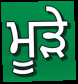
ਮੂੜੇ